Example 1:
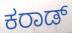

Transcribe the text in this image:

ಕರಾಡ್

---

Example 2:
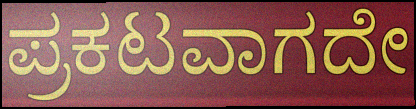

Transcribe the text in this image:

ಪ್ರಕಟವಾಗದೇ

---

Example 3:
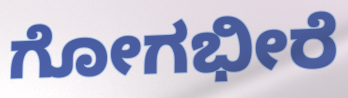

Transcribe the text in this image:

ಗೋಗಭೀರೆ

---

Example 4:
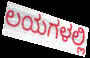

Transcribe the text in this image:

ಲಯಗಳಲ್ಲಿ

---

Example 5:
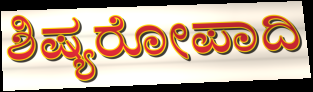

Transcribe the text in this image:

ಶಿಷ್ಯರೋಪಾದಿ